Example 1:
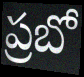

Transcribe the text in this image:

ప్రబో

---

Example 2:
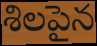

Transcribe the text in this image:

శిలపైన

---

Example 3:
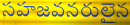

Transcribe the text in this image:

సహజవనరులైన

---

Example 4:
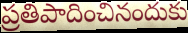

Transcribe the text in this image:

ప్రతిపాదించినందుకు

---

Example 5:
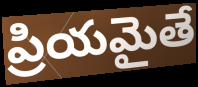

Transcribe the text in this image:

ప్రియమైతే